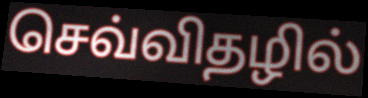
செவ்விதழில்